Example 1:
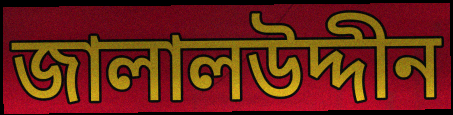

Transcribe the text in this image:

জালালউদ্দীন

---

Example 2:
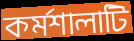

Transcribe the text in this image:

কর্মশালাটি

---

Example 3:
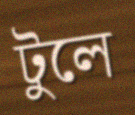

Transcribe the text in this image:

টুলে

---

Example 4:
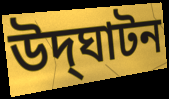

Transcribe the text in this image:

উদ্‌ঘাটন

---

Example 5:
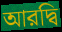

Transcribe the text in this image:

আরদ্বি